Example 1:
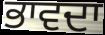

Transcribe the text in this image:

ਭਾਵਦਾ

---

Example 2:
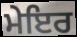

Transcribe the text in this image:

ਮੇਇਰ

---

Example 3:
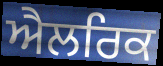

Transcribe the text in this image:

ਐਲਰਿਕ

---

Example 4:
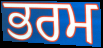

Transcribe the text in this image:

ਭਰਮ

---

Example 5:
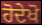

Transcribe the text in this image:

ਹੋਦੇਖੋ